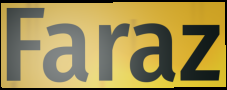
Faraz